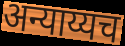
अन्याय्यच